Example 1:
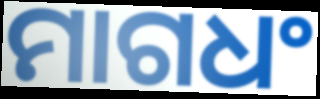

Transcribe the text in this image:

ମାଗଧଂ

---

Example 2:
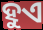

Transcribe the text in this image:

ହୁଏ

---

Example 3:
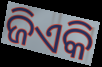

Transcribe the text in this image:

ଜିଏକି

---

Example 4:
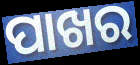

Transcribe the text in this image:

ପାଖର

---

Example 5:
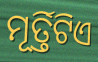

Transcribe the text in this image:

ମୂର୍ତ୍ତିଟିଏ